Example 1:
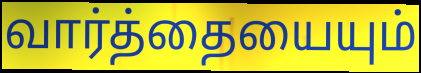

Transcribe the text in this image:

வார்த்தையையும்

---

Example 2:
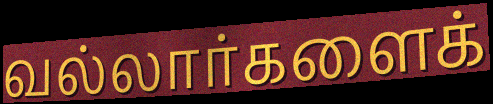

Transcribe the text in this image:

வல்லார்களைக்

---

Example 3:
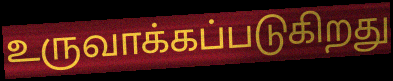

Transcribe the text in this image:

உருவாக்கப்படுகிறது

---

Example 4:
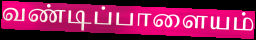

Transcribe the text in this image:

வண்டிப்பாளையம்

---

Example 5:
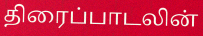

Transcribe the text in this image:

திரைப்பாடலின்